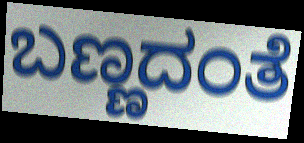
ಬಣ್ಣದಂತೆ